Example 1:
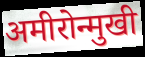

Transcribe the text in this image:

अमीरोन्मुखी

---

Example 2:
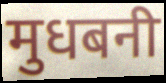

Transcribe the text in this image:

मुधबनी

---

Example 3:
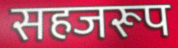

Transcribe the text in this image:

सहजरूप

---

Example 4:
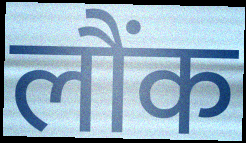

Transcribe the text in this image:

लौंक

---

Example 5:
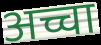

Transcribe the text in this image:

अच्चा